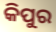
କିପୁର